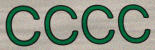
CCCC